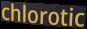
chlorotic